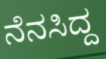
ನೆನಸಿದ್ದ